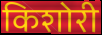
किशोरी